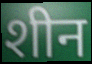
शीन